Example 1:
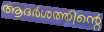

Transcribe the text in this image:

ആദർശത്തിന്റെ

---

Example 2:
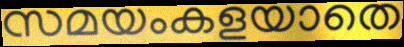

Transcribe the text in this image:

സമയംകളയാതെ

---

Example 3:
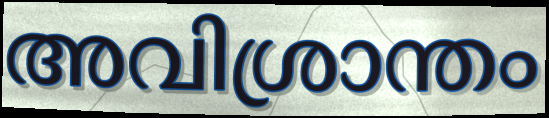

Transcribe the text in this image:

അവിശ്രാന്തം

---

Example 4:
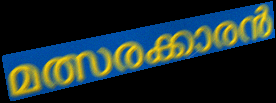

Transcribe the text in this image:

മത്സരക്കാരൻ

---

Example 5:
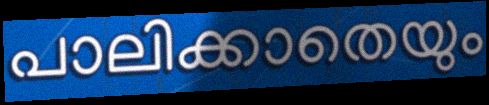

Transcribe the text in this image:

പാലിക്കാതെയും